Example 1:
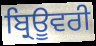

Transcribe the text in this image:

ਬ੍ਰਿਊਵਰੀ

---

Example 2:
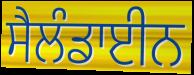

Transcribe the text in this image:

ਸੈਲੰਡਾਈਨ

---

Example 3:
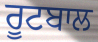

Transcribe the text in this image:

ਰੂਟਬਾਲ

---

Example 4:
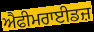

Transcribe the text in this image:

ਐਫੀਮਰਾਈਡਜ਼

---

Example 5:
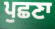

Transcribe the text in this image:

ਪੁਛਣਾ